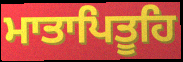
ਮਾਤਾਪਿਤੂਹਿ